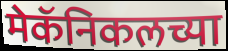
मेकॅनिकलच्या